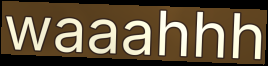
waaahhh